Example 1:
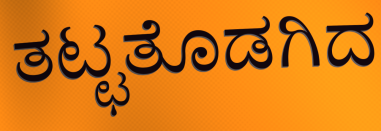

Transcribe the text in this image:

ತಟ್ಟತೊಡಗಿದ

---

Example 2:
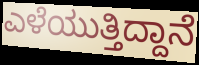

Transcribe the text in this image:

ಎಳೆಯುತ್ತಿದ್ದಾನೆ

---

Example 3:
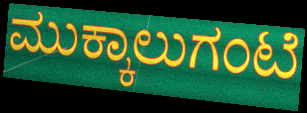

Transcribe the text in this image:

ಮುಕ್ಕಾಲುಗಂಟೆ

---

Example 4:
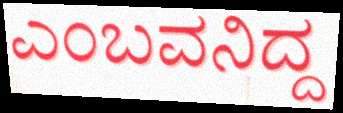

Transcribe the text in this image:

ಎಂಬವನಿದ್ದ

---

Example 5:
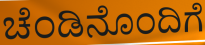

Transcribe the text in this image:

ಚೆಂಡಿನೊಂದಿಗೆ